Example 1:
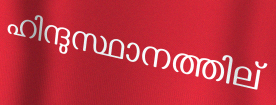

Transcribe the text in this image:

ഹിന്ദുസ്ഥാനത്തില്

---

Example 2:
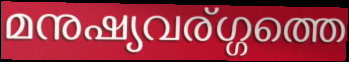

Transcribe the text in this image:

മനുഷ്യവര്ഗ്ഗത്തെ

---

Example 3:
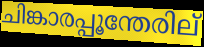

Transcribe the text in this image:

ചിങ്കാരപ്പൂന്തേരില്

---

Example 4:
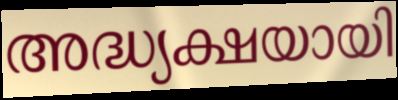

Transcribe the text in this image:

അദ്ധ്യക്ഷയായി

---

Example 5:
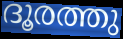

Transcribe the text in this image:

ദൂരത്തു